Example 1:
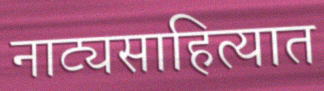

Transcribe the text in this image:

नाट्यसाहित्यात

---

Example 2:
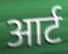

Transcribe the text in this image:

आर्ट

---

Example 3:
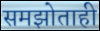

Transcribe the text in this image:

समझोताही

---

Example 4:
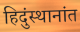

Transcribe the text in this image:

हिदुंस्थानांत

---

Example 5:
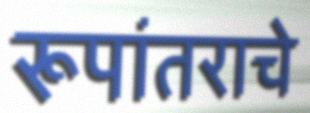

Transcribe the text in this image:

रूपांतराचे